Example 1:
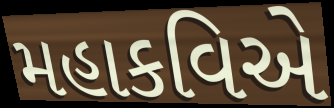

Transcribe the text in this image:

મહાકવિએ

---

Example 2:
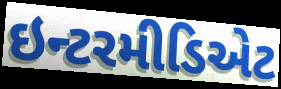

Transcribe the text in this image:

ઇન્ટરમીડિએટ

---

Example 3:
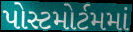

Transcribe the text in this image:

પોસ્ટમોર્ટમમાં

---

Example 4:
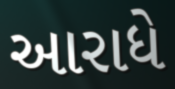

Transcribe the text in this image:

આરાધે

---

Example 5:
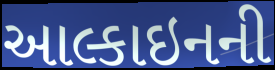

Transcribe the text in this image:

આલ્કાઇનની